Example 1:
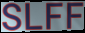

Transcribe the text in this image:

SLFF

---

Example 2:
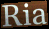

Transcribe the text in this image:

Ria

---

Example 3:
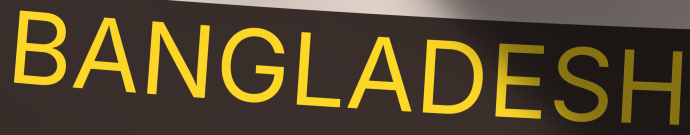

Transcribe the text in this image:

BANGLADESH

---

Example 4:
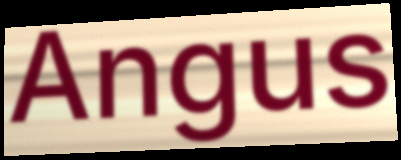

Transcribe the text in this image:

Angus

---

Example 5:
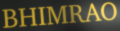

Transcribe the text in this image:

BHIMRAO